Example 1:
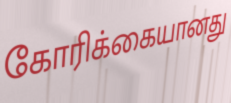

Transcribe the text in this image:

கோரிக்கையானது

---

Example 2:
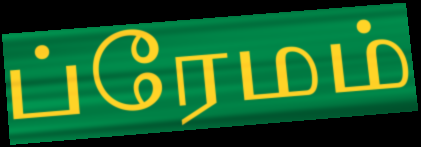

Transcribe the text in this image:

ப்ரேமம்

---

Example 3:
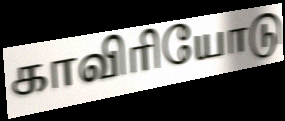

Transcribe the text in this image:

காவிரியோடு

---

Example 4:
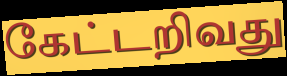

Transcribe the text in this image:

கேட்டறிவது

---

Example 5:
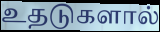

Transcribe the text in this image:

உதடுகளால்